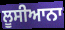
ਲੂਸੀਆਨਾ